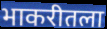
भाकरीतला